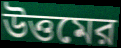
উত্তমের